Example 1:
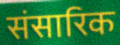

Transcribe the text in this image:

संसारिक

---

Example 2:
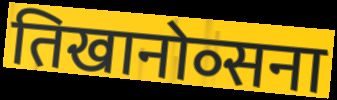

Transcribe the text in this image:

तिखानोव्सना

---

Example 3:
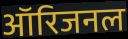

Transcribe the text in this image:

ऑरिजनल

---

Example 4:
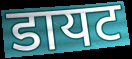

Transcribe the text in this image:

डायट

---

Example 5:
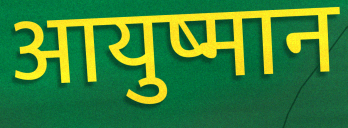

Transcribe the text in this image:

आयुष्मान